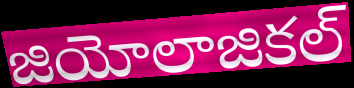
జియోలాజికల్